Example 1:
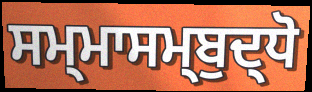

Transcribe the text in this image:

ਸਮ੍ਮਾਸਮ੍ਬੁਦ੍ਧੋ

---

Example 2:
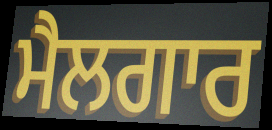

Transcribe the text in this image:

ਮੈਲਗਾਰ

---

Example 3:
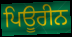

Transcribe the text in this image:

ਪਿਊਰੀਨ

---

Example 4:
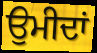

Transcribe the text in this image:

ਉਮੀਦਾਂ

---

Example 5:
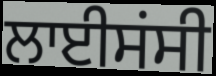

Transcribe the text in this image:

ਲਾਈਸਂਸੀ